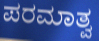
ಪರಮಾತ್ವ